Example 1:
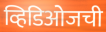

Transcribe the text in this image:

व्हिडिओजची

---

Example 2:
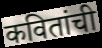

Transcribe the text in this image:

कवितांची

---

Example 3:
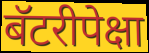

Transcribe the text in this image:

बॅटरीपेक्षा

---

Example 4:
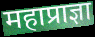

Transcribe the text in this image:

महाप्राज्ञा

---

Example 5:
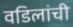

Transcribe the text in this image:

वडिलांची